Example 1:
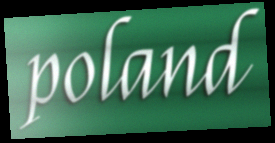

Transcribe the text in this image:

poland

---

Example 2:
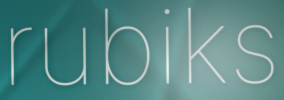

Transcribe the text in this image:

rubiks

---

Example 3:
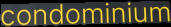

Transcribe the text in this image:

condominium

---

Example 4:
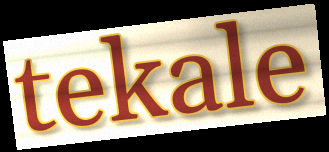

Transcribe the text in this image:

tekale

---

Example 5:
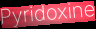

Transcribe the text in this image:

Pyridoxine